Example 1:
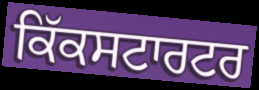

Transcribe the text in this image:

ਕਿੱਕਸਟਾਰਟਰ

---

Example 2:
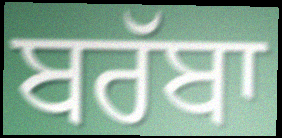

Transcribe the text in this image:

ਬਰੱਬਾ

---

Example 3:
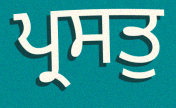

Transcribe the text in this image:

ਪ੍ਰਸਤੁ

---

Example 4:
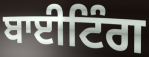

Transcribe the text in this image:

ਬਾਈਟਿੰਗ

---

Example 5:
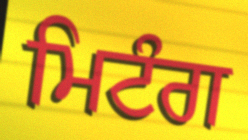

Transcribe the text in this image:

ਮਿਟੰਗ